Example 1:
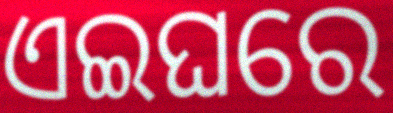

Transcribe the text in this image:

ଏଇଘରେ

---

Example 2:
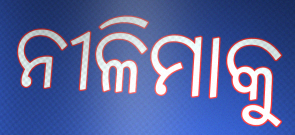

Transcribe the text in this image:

ନୀଳିମାକୁ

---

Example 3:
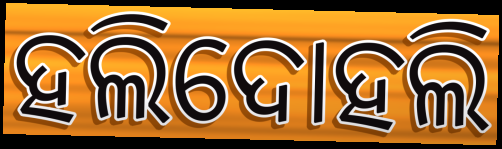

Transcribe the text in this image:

ହଲିଦୋହଲି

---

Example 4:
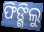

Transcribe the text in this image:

ଫିଙ୍ଗିଲୁ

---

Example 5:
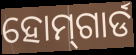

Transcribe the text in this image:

ହୋମ୍‌ଗାର୍ଡ